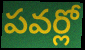
పవర్లో